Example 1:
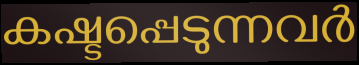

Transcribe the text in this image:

കഷ്ടപ്പെടുന്നവർ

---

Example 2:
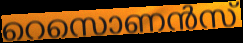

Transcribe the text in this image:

റെസൊണൻസ്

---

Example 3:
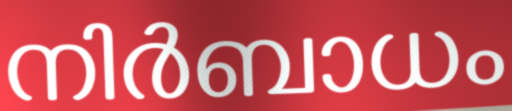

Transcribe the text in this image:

നിർബാധം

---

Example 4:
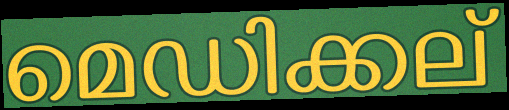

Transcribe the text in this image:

മെഡിക്കല്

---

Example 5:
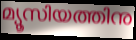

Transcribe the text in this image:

മ്യൂസിയത്തിനു